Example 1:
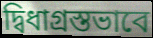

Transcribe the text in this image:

দ্বিধাগ্রস্তভাবে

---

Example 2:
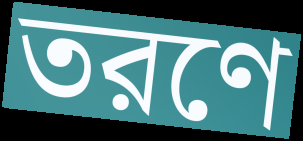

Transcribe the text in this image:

তরণে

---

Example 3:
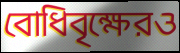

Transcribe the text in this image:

বোধিবৃক্ষেরও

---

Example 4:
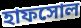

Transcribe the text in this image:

হাফসোল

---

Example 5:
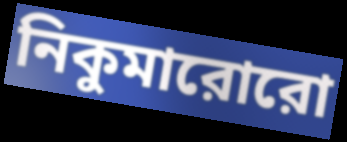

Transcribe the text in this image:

নিকুমারোরো